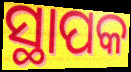
ସ୍ଥାପକ